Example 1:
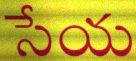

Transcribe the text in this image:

సేయ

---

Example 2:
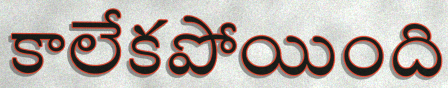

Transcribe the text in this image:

కాలేకపోయింది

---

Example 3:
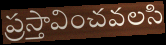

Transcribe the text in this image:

ప్రస్తావించవలసి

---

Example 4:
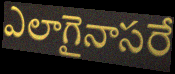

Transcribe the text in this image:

ఎలాగైనాసరే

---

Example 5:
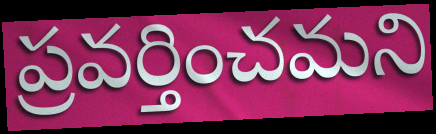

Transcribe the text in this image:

ప్రవర్తించమని